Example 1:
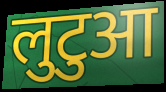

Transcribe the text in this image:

लुटुआ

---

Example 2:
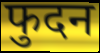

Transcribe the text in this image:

फुदन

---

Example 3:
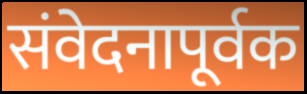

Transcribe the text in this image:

संवेदनापूर्वक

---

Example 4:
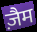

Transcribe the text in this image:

ज़ैम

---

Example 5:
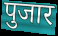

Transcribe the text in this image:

पुजार